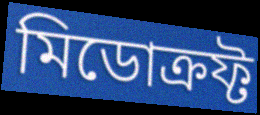
মিডোক্রফ্ট